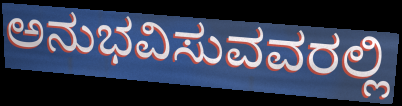
ಅನುಭವಿಸುವವರಲ್ಲಿ